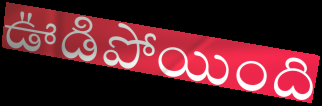
ఊడిపోయింది